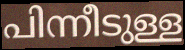
പിന്നീടുള്ള